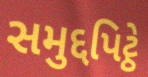
સમુદ્દપિટ્ઠે